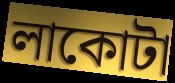
লাকোটা